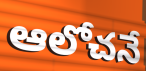
ఆలోచనే